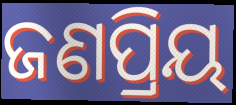
ଜଣପ୍ରିୟ